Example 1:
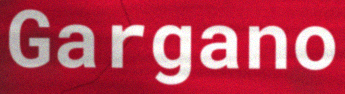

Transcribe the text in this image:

Gargano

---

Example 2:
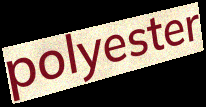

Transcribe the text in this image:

polyester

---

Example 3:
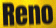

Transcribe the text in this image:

Reno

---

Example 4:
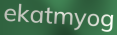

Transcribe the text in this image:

ekatmyog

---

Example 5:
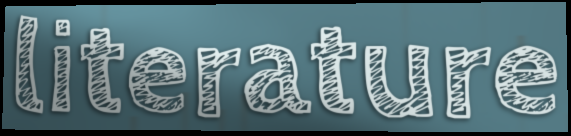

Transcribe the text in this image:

literature